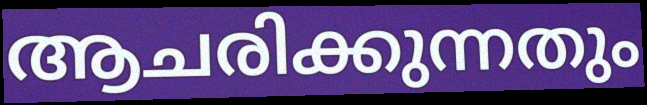
ആചരിക്കുന്നതും